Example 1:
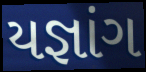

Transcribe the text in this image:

યજ્ઞાંગ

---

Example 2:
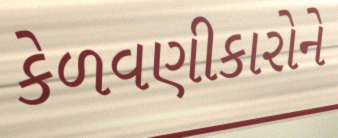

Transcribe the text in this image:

કેળવણીકારોને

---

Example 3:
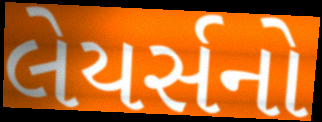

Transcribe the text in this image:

લેયર્સનો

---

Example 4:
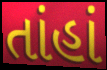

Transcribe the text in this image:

તાંહાં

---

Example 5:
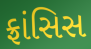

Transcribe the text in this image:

ફ્રાંસિસ